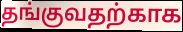
தங்குவதற்காக